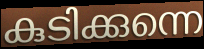
കുടിക്കുന്നെ